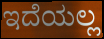
ಇದೆಯಲ್ಲ